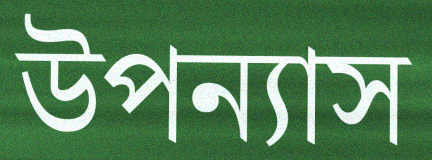
উপন্যাস